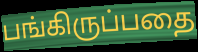
பங்கிருப்பதை